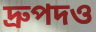
দ্রুপদও